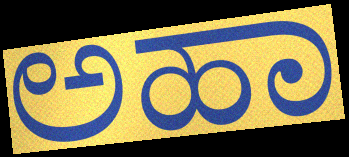
ಅಹಾ